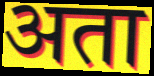
अता